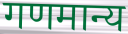
गणमान्य